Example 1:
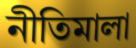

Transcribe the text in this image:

নীতিমালা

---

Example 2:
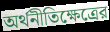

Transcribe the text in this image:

অর্থনীতিক্ষেত্রের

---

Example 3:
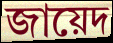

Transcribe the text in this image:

জায়েদ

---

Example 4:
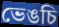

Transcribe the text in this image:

ভেঙচি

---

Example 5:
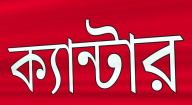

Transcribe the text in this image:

ক্যান্টার